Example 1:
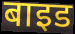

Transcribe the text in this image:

बाइड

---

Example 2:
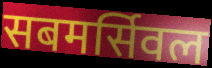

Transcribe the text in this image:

सबमर्सिवल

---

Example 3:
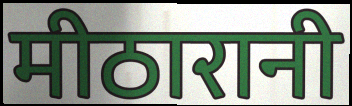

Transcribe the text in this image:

मीठारानी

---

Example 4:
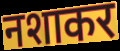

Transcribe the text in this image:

नशाकर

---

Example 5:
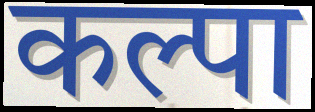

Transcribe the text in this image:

कल्पा